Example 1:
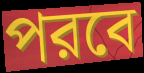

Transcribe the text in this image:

পরবে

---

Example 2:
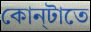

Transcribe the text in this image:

কোন্‌টাতে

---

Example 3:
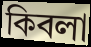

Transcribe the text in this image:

কিবলা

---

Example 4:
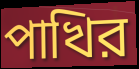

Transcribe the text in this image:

পাখির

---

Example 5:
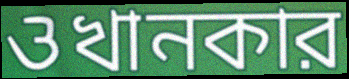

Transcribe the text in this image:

ওখানকার